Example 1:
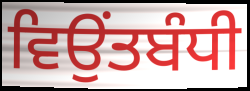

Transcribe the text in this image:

ਵਿਉਂਤਬੰਧੀ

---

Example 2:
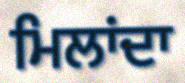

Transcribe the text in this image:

ਮਿਲਾਂਦਾ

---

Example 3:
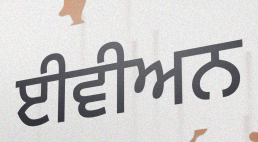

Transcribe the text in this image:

ਈਵੀਅਨ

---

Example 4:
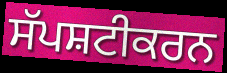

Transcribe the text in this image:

ਸੱਪਸ਼ਟੀਕਰਨ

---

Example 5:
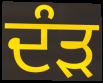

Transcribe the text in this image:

ਦੰੜ